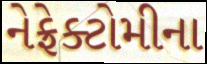
નેફ્રેક્ટોમીના